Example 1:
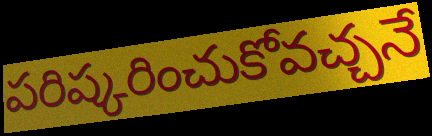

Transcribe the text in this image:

పరిష్కరించుకోవచ్చనే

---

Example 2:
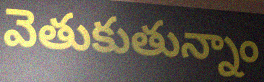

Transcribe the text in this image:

వెతుకుతున్నాం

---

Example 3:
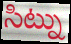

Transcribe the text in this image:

సిట్ను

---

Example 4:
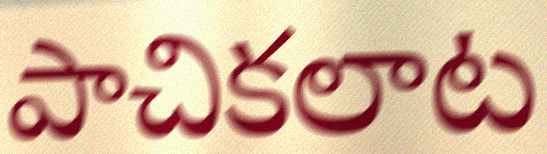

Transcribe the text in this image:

పాచికలాట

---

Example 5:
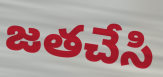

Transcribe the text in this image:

జతచేసి